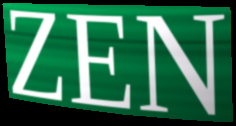
ZEN